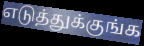
எடுத்துக்குங்க